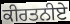
ਕੀਰਤਨੀਏ